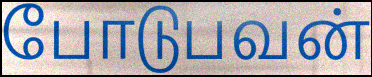
போடுபவன்